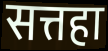
सत्तहा